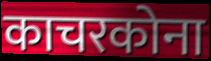
काचरकोना